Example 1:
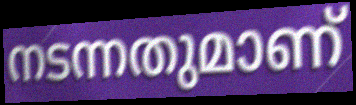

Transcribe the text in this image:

നടന്നതുമാണ്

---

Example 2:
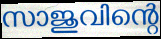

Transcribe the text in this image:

സാജുവിന്റെ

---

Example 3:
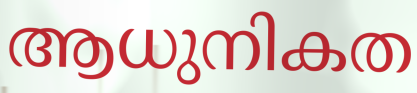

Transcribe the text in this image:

ആധുനികത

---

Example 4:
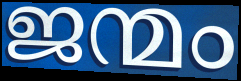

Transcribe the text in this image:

ജന്മം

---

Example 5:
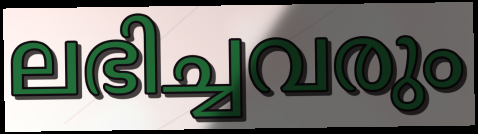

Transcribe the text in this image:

ലഭിച്ചവരും